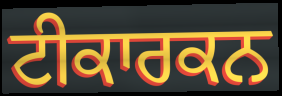
ਟੀਕਾਰਕਨ